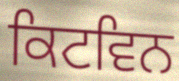
ਕਿਟਵਿਨ